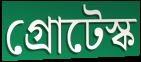
গ্রোটেস্ক